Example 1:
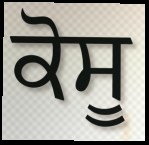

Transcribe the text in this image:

ਕੋਸੂ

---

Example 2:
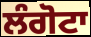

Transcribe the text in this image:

ਲੰਗੋਟਾ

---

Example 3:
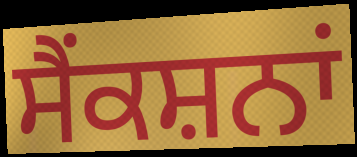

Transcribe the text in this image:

ਸੈਂਕਸ਼ਨਾਂ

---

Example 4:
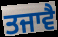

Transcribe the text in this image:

ਤਜਾਵੈ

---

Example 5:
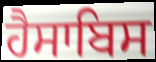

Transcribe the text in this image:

ਹੈਸਾਬਿਸ